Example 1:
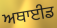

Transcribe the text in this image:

ਅਥਾਈਡ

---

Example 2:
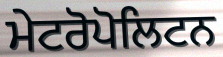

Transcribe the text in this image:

ਮੇਟਰੋਪੋਲਿਟਨ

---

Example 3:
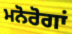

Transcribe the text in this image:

ਮਨੋਰੋਗਾਂ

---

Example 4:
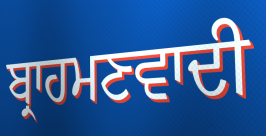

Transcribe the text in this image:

ਬ੍ਰਾਹਮਣਵਾਦੀ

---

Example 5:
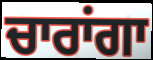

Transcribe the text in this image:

ਚਾਰਾਂਗਾ